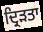
ਦ੍ਰਿੜਤਾ